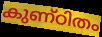
കുണ്ഠിതം